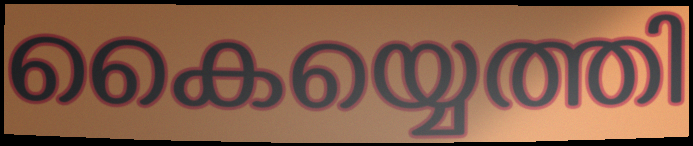
കൈയ്യെത്തി